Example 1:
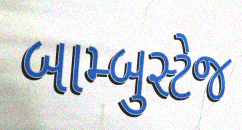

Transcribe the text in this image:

બામ્બુસ્ટેજ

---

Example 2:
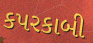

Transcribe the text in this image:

કપરકાબી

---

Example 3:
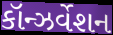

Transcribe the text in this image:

કૉન્ઝર્વેશન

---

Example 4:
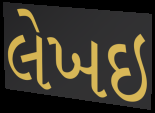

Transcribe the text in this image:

લેખઇ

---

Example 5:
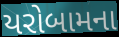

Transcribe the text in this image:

યરોબામના